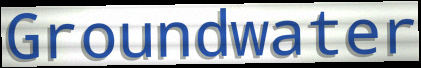
Groundwater